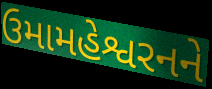
ઉમામહેશ્વરનને